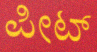
ಪೀಟ್